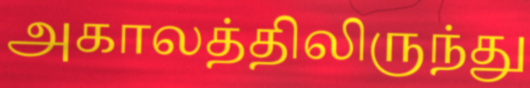
அகாலத்திலிருந்து